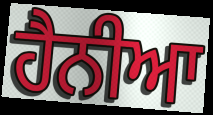
ਹੈਨੀਆ